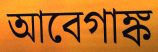
আবেগাঙ্ক